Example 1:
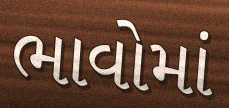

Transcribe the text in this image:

ભાવોમાં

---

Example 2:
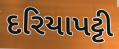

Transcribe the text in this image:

દરિયાપટ્ટી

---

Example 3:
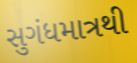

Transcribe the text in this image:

સુગંધમાત્રથી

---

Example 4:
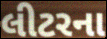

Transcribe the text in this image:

લીટરના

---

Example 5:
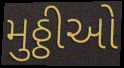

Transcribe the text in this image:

મુઠ્ઠીઓ